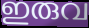
ഇരുവ